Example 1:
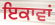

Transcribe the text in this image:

ਇਕਾਵਾਂ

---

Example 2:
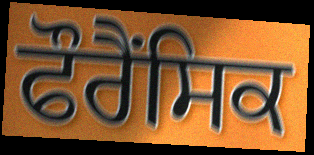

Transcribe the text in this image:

ਫੌਰੈਂਸਿਕ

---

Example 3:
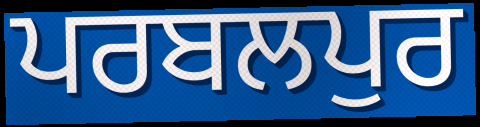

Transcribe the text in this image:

ਪਰਬਲਪੁਰ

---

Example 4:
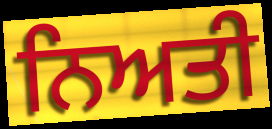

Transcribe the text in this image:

ਨਿਅਤੀ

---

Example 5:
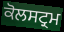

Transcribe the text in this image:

ਕੋਲਸਟ੍ਰਮ